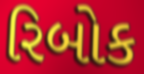
રિબોક